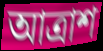
আত্রাশ